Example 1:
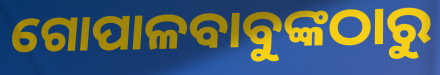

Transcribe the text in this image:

ଗୋପାଳବାବୁଙ୍କଠାରୁ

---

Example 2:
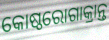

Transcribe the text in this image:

କୋଷ୍ଠରୋଗାକ୍ରାନ୍ତ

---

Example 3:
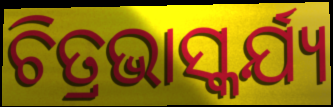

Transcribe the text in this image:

ଚିତ୍ରଭାସ୍କର୍ଯ୍ୟ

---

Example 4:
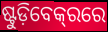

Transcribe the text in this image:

ଷ୍ଟୁଡ଼ିବେକ୍‌ରରେ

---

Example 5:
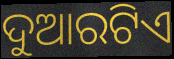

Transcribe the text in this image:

ଦୁଆରଟିଏ